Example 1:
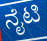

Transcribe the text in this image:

ನೈಟಿ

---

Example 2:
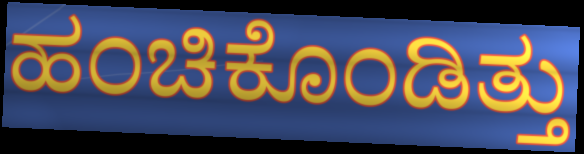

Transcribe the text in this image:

ಹಂಚಿಕೊಂಡಿತ್ತು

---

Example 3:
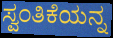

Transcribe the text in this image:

ಸ್ವಂತಿಕೆಯನ್ನ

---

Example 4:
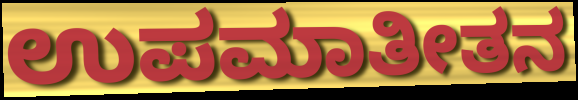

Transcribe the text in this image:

ಉಪಮಾತೀತನ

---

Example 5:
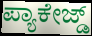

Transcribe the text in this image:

ಪ್ಯಾಕೇಜ್ಡ್